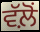
ਵੱਲ਼ੋਂ